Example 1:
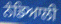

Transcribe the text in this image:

ਨੰਡਿਆਲੀ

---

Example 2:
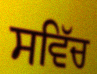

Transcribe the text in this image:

ਸਵਿੱਚ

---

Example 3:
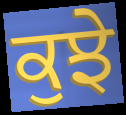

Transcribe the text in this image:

ਕੁਝੇ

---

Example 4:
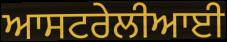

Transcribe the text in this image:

ਆਸਟਰੇਲੀਆਈ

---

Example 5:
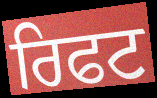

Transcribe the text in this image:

ਰਿਫਟ